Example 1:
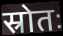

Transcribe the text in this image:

स्रोतः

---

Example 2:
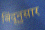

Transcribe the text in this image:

बिंदूनुसार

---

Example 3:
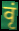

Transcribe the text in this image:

वृं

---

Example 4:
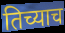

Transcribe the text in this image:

तिच्याच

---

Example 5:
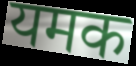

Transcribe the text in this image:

यमक